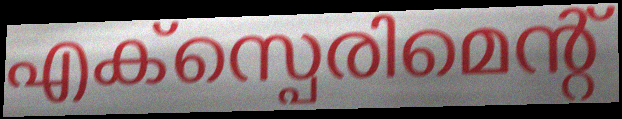
എക്സ്പെരിമെന്റ്